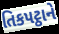
તિકપટ્ઠાને